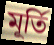
মূর্তি